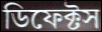
ডিফেক্টস